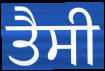
ਤੈਸੀ